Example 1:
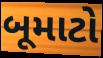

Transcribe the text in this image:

બૂમાટો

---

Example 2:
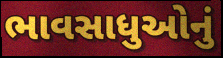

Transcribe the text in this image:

ભાવસાધુઓનું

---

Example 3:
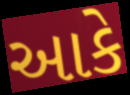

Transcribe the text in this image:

આકે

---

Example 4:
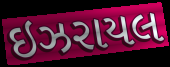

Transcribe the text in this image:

ઇઝરાયલ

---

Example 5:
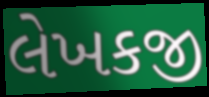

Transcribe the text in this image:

લેખકજી